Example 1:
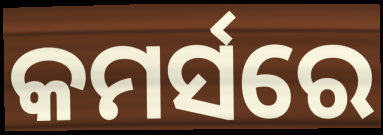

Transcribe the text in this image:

କମର୍ସରେ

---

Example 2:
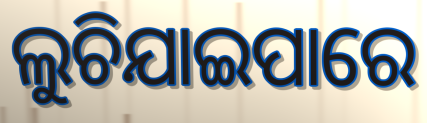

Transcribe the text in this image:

ଲୁଚିଯାଇପାରେ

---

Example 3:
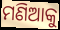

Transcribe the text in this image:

ମଣିଆକୁ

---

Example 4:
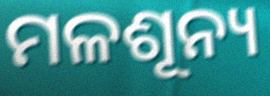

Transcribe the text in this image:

ମଳଶୂନ୍ୟ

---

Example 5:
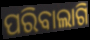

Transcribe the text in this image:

ପରିବାଲାଗି